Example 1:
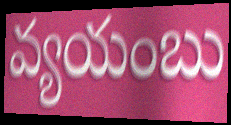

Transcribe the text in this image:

వ్యయంబు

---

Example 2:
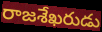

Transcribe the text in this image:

రాజశేఖరుడు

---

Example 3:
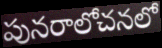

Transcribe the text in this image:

పునరాలోచనలో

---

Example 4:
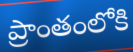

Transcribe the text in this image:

ప్రాంతంలోకి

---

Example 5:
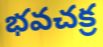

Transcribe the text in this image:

భవచక్ర